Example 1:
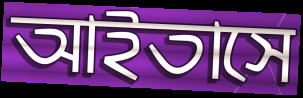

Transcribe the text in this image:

আইতাসে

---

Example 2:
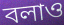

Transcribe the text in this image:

বলাও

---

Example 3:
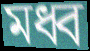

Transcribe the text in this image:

মধ্ব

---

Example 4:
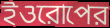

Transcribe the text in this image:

ইওরোপের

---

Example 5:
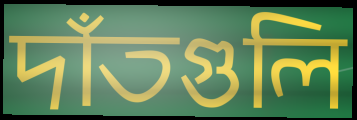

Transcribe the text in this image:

দাঁতগুলি